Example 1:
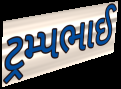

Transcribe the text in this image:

ટ્રમ્પભાઈ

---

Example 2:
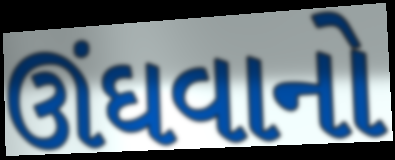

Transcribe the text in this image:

ઊંઘવાનો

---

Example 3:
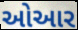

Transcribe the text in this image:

ઓઆર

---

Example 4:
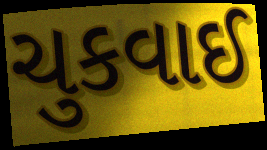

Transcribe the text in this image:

ચુકવાઈ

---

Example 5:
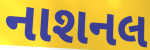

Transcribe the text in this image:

નાશનલ